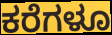
ಕರೆಗಳೂ